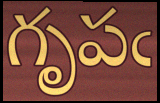
గృపఁ